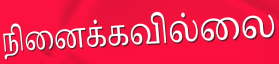
நினைக்கவில்லை